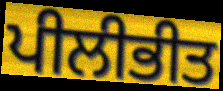
ਪੀਲੀਭੀਤ